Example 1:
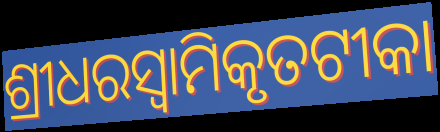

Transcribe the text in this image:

ଶ୍ରୀଧରସ୍ଵାମିକୃତଟୀକା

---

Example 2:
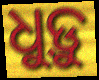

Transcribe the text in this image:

ଧୁଡ଼ୁ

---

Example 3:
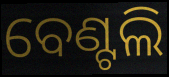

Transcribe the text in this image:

ବେଣ୍ଟଲି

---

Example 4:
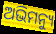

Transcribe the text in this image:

ଅଭିମନ୍ଯୁ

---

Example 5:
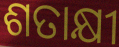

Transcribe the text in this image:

ଶତାକ୍ଷୀ